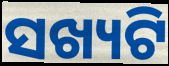
ସଖ୍ୟଟି